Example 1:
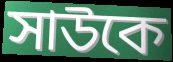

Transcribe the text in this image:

সাউকে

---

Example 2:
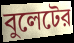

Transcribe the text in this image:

বুলেটের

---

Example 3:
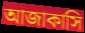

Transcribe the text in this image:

আজাকাসি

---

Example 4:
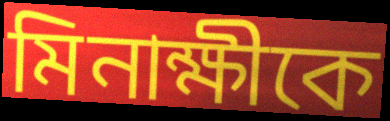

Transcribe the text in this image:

মিনাক্ষীকে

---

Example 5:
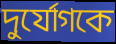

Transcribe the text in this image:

দুর্যোগকে